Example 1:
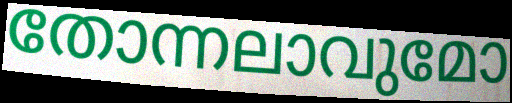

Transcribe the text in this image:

തോന്നലാവുമോ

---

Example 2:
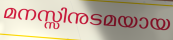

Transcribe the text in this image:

മനസ്സിനുടമയായ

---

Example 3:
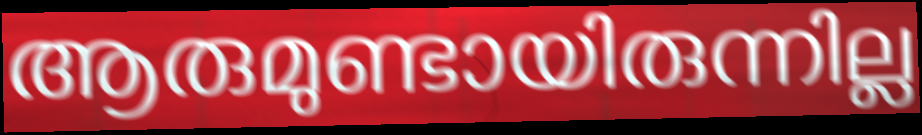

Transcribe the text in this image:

ആരുമുണ്ടായിരുന്നില്ല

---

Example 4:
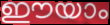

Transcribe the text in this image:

ഈയാം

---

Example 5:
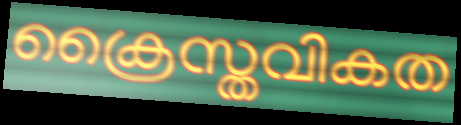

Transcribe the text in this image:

ക്രൈസ്തവികത